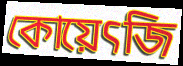
কোয়েৎজি